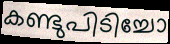
കണ്ടുപിടിച്ചോ